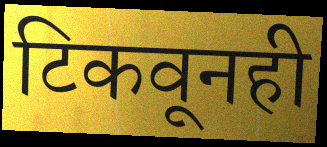
टिकवूनही